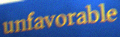
unfavorable